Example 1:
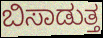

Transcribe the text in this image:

ಬಿಸಾಡುತ್ತ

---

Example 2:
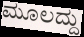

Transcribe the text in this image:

ಮೂಲದ್ದು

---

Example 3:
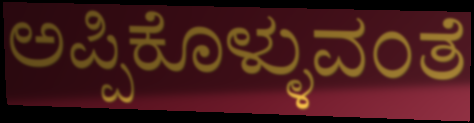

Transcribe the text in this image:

ಅಪ್ಪಿಕೊಳ್ಳುವಂತೆ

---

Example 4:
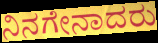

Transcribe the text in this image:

ನಿನಗೇನಾದರು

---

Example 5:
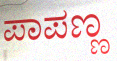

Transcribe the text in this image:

ಪಾಪಣ್ಣ